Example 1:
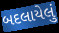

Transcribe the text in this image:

બદલાયેલું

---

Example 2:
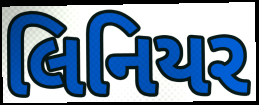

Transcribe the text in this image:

લિનિયર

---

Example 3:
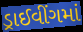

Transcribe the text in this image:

ડ્રાઈવીંગમાં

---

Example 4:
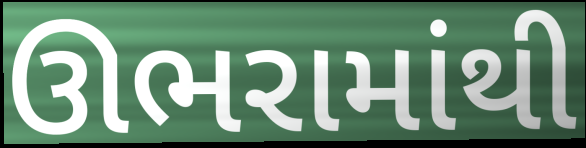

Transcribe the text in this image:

ઊભરામાંથી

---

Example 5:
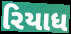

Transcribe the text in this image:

રિયાધ